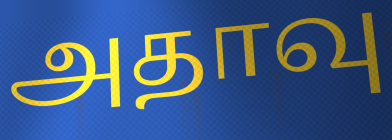
அதாவு